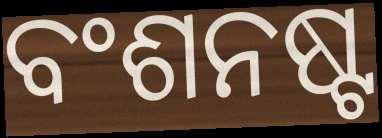
ବଂଶନଷ୍ଟ